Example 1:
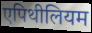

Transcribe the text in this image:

एपिथीलियम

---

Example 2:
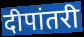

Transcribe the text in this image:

दीपांतरी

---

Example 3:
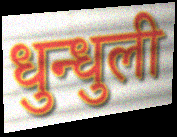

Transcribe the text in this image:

धुन्धुली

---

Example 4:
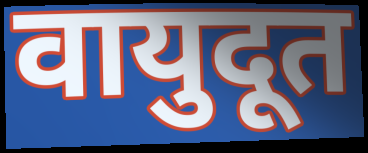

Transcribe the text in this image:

वायुदूत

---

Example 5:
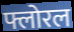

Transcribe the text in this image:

फ्लोरल